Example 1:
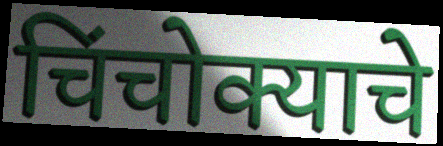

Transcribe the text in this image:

चिंचोक्याचे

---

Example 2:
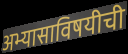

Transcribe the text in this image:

अभ्यासाविषयीची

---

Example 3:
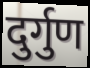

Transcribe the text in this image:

दुर्गुण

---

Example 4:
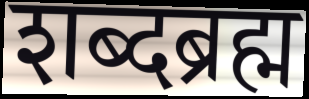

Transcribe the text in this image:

शब्दब्रह्म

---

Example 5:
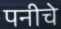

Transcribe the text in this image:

पनीचे